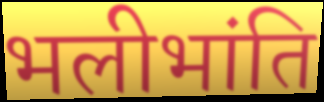
भलीभांति